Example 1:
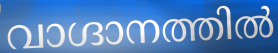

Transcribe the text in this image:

വാഗ്ദാനത്തിൽ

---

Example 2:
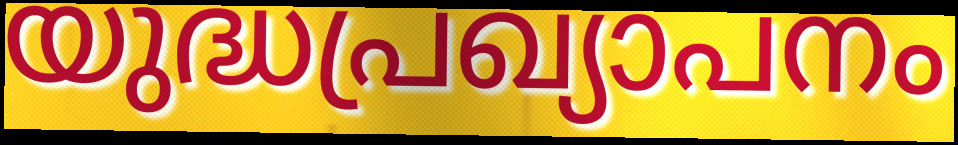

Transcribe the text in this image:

യുദ്ധപ്രഖ്യാപനം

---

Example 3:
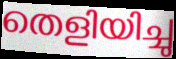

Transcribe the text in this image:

തെളിയിച്ചു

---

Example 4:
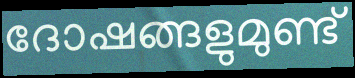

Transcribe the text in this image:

ദോഷങ്ങളുമുണ്ട്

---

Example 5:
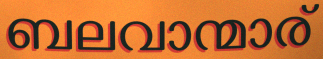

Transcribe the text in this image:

ബലവാന്മാര്